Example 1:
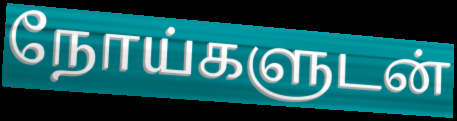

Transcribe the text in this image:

நோய்களுடன்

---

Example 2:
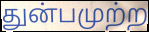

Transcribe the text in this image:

துன்பமுற்ற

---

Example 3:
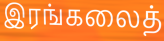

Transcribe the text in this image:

இரங்கலைத்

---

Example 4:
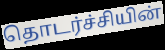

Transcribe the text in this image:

தொடர்ச்சியின்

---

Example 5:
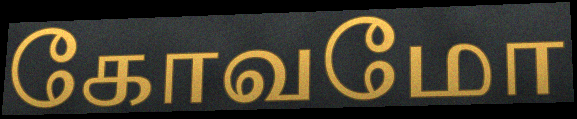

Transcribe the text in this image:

கோவமோ